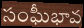
సంఘీభావ